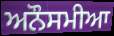
ਅਨੌਸਮੀਆ